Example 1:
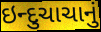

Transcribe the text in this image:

ઇન્દુચાચાનું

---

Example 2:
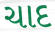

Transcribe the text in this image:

ચાદ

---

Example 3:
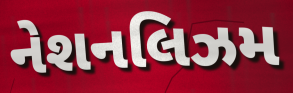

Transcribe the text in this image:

નેશનલિઝમ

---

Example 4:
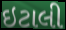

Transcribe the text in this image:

ઇટાલી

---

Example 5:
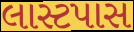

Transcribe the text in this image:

લાસ્ટપાસ